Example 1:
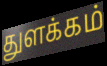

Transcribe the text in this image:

துளக்கம்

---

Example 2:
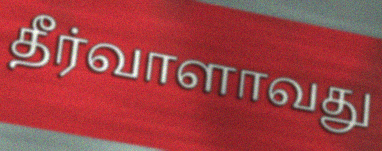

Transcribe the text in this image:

தீர்வாளாவது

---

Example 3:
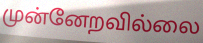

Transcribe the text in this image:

முன்னேறவில்லை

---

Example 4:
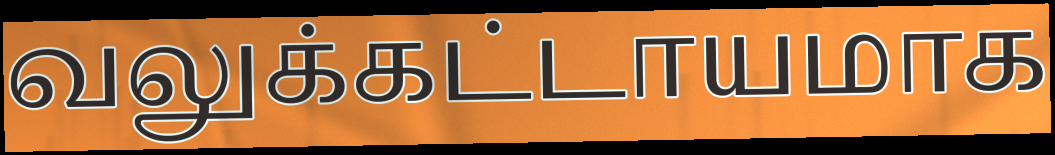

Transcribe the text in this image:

வலுக்கட்டாயமாக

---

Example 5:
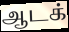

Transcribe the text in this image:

ஆடக்